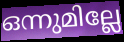
ഒന്നുമില്ലേ